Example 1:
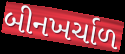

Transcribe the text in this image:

બીનખર્ચાળ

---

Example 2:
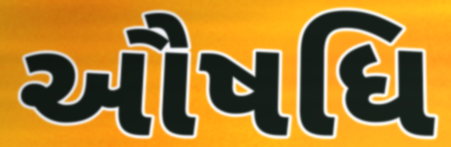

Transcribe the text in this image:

ઔષધિ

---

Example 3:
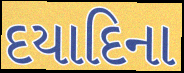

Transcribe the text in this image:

દયાદિના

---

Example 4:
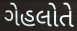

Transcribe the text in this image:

ગેહલોતે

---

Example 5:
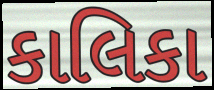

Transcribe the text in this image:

કાલિકા